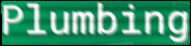
Plumbing